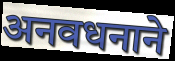
अनवधनाने